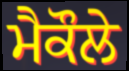
ਮੈਕੌਲੇ